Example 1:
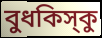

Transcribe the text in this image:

বুধকিস্‌কু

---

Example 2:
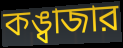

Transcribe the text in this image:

কঙ্বাজার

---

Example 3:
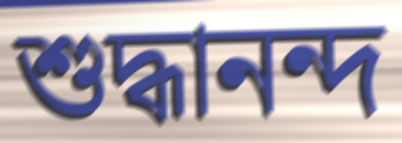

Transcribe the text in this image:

শুদ্ধানন্দ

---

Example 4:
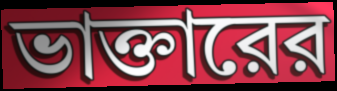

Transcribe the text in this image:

ভাক্তারের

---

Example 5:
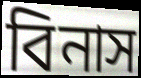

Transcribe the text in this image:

বিনাস